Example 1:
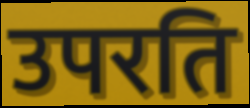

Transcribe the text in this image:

उपरति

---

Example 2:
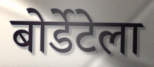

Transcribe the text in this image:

बोर्डेटेला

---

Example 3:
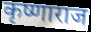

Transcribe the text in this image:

कृष्णाराज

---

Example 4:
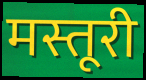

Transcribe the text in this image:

मस्तूरी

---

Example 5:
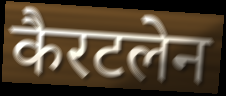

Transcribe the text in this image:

कैरटलेन